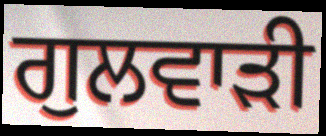
ਗੁਲਵਾੜੀ